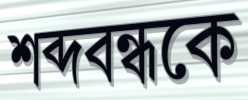
শব্দবন্ধকে